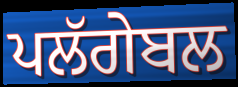
ਪਲੱਗੇਬਲ